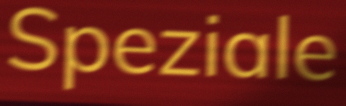
Speziale